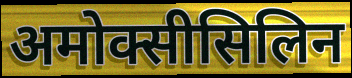
अमोक्सीसिलिन